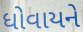
ધોવાયને